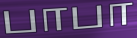
பாபா